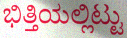
ಭಿತ್ತಿಯಲ್ಲಿಟ್ಟು